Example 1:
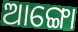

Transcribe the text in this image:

ଆଙ୍ଗୋ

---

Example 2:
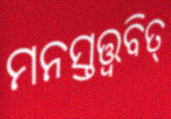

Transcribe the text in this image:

ମନସ୍ତତ୍ତ୍ଵବିତ୍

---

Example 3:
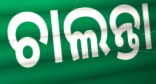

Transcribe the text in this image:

ଚାଲନ୍ତା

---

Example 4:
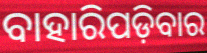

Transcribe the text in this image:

ବାହାରିପଡ଼ିବାର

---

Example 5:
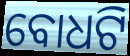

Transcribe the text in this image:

ବୋଧଟି